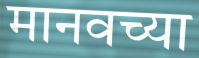
मानवच्या